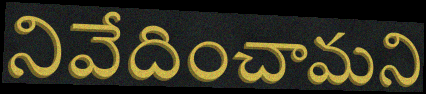
నివేదించామని